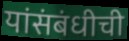
यांसंबंधीची